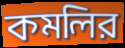
কমলির